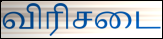
விரிசடை